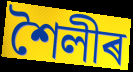
শৈলীৰ